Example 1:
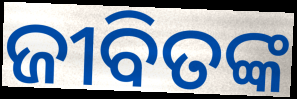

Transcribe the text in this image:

ଜୀବିତଙ୍କ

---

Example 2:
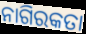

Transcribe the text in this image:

ନାଗିରକତା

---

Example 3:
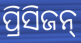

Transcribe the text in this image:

ପ୍ରିସିଜନ୍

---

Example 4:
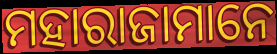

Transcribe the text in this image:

ମହାରାଜାମାନେ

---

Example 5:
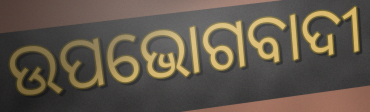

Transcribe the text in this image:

ଉପଭୋଗବାଦୀ